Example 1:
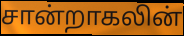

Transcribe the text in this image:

சான்றாகலின்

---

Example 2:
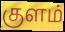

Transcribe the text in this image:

குளம்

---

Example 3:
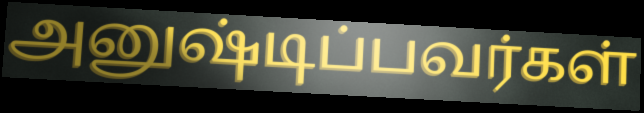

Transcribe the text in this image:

அனுஷ்டிப்பவர்கள்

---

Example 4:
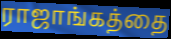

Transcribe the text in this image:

ராஜாங்கத்தை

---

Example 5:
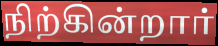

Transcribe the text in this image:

நிற்கின்றார்